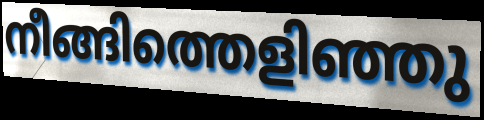
നീങ്ങിത്തെളിഞ്ഞു